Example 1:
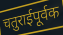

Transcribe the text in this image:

चतुराईपूर्वक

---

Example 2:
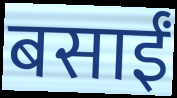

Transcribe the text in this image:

बसाईं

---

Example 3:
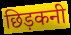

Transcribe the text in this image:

छिड़कनी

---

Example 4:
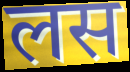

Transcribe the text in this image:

लस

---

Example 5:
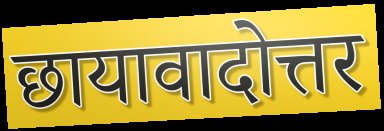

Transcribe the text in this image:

छायावादोत्तर